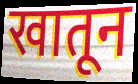
खातून